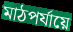
মাঠপর্যায়ে